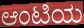
ಆಂಟಿಯ